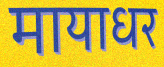
मायाधर